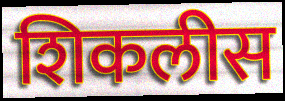
शिकलीस